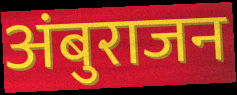
अंबुराजन